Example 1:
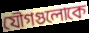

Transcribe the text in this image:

যৌগগুলোকে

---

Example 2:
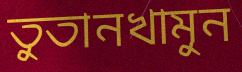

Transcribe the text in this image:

তুতানখামুন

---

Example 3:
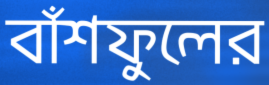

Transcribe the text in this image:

বাঁশফুলের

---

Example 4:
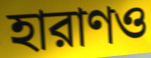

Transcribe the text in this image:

হারাণও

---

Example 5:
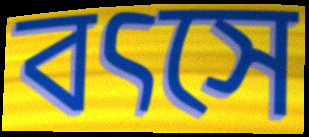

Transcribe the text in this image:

বৎসে